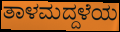
ತಾಳಮದ್ದಳೆಯ